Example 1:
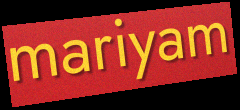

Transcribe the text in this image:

mariyam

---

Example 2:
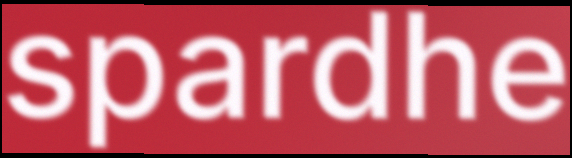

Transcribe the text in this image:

spardhe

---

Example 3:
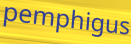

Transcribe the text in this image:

pemphigus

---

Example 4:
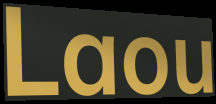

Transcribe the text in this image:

Laou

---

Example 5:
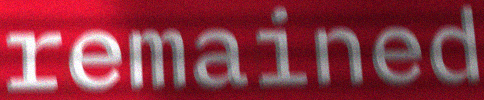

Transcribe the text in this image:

remained